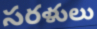
సరళులు